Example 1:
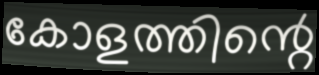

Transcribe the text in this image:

കോളത്തിന്റെ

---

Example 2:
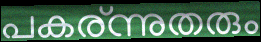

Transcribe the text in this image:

പകര്ന്നുതരും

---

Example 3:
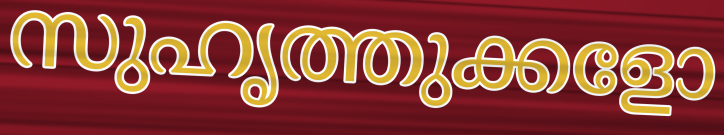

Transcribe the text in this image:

സുഹൃത്തുക്കളോ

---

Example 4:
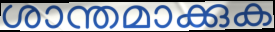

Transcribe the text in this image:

ശാന്തമാക്കുക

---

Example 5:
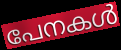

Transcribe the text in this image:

പേനകൾ